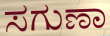
ಸಗುಣಾ